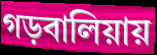
গড়বালিয়ায়